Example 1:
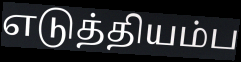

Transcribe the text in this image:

எடுத்தியம்ப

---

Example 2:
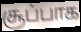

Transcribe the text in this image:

சூப்பாக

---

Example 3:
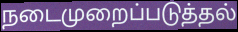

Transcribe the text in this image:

நடைமுறைப்படுத்தல்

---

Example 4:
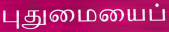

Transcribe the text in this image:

புதுமையைப்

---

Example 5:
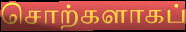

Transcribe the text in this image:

சொற்களாகப்